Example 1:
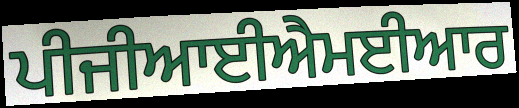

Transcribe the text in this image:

ਪੀਜੀਆਈਐਮਈਆਰ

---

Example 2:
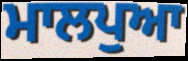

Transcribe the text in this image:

ਮਾਲਪੁਆ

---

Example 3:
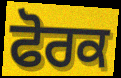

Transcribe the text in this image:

ਫੋਰਕ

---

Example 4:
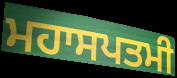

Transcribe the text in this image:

ਮਹਾਸਪਤਮੀ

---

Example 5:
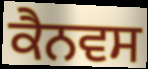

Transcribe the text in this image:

ਕੈਨਵਸ